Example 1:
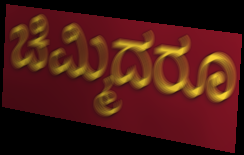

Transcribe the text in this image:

ಚಿಮ್ಮಿದರೂ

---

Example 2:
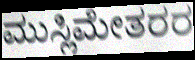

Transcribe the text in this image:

ಮುಸ್ಲಿಮೇತರರ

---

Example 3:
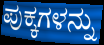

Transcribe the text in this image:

ಪುಕ್ಕಗಳನ್ನು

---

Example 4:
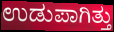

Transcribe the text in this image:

ಉಡುಪಾಗಿತ್ತು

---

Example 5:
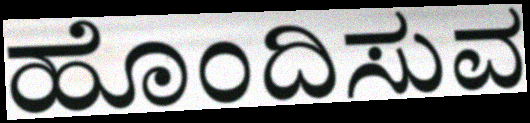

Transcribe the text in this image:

ಹೊಂದಿಸುವ